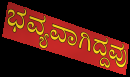
ಭವ್ಯವಾಗಿದ್ದವು